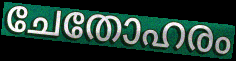
ചേതോഹരം